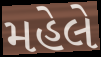
મહેલે